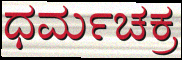
ಧರ್ಮಚಕ್ರ